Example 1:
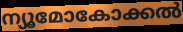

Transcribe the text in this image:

ന്യൂമോകോക്കൽ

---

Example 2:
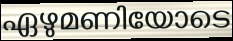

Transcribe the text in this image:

ഏഴുമണിയോടെ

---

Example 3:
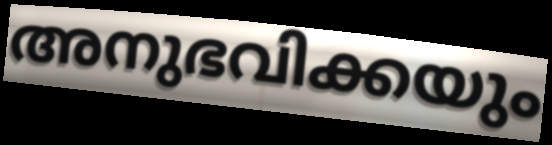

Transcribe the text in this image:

അനുഭവിക്കയും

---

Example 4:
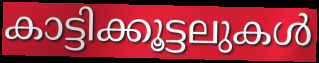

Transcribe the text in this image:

കാട്ടിക്കൂട്ടലുകൾ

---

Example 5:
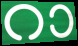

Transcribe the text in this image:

റാ